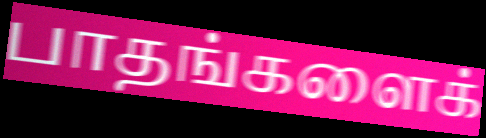
பாதங்களைக்